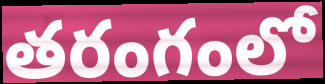
తరంగంలో